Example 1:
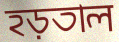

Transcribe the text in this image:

হড়তাল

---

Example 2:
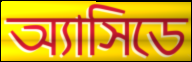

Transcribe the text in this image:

অ্যাসিডে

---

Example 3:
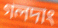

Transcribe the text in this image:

গলদাং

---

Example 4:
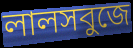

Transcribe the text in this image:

লালসবুজে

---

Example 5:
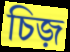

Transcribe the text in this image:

চিজ়